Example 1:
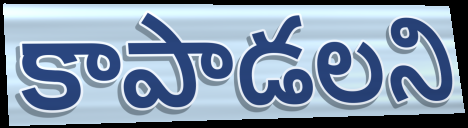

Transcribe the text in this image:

కాపాడలని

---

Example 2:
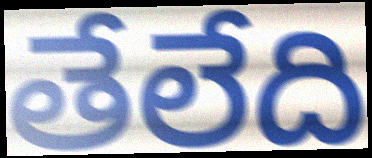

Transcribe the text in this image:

తేలేది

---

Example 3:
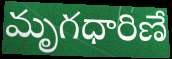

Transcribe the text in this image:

మృగధారిణే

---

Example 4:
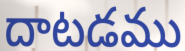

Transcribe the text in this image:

దాటడము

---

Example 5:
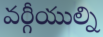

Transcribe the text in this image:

వర్గీయుల్ని